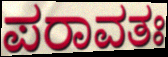
ಪರಾವತಃ